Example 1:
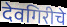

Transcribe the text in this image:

देवगिरीचे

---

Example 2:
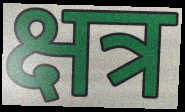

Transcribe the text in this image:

क्षत्र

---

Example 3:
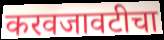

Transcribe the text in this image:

करवजावटीचा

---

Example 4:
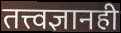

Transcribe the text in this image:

तत्त्वज्ञानही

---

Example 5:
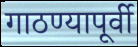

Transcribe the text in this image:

गाठण्यापूर्वी